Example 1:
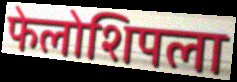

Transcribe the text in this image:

फेलोशिपला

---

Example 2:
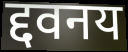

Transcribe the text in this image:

द्दवनय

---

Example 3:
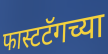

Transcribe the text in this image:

फास्टटॅगच्या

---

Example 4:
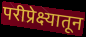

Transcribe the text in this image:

परीप्रेक्ष्यातून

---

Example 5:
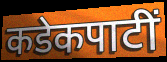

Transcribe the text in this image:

कडेकपाटीं